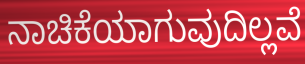
ನಾಚಿಕೆಯಾಗುವುದಿಲ್ಲವೆ